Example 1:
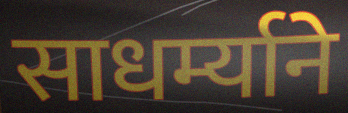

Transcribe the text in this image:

साधर्म्याने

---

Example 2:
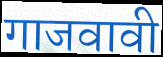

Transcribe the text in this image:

गाजवावी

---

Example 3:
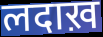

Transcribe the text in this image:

लदाख़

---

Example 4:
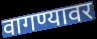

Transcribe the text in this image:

वागण्यावर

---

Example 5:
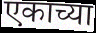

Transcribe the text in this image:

एकाच्या